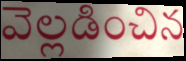
వెల్లడించిన